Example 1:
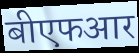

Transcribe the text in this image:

बीएफआर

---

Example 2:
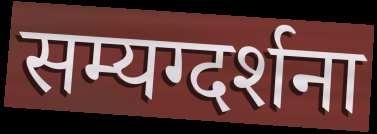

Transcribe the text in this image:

सम्यग्दर्शना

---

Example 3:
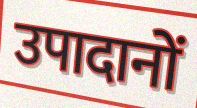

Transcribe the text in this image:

उपादानों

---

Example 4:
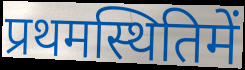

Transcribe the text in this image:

प्रथमस्थितिमें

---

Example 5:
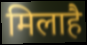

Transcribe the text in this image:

मिलाहै